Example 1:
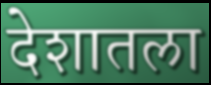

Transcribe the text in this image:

देशातला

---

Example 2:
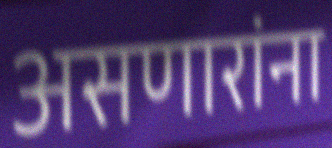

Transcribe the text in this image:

असणारांना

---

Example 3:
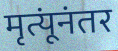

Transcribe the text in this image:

मृत्यूंनंतर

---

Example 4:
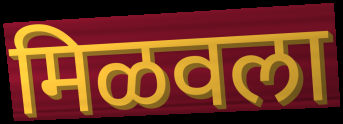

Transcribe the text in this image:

मिळवला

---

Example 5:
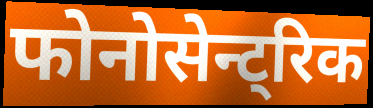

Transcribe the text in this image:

फोनोसेन्ट्रिक